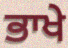
ਭਾਖੇ